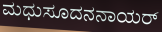
ಮಧುಸೂದನನಾಯರ್